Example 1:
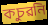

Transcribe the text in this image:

কচুৱনি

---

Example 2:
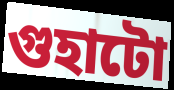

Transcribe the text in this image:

গুহাটো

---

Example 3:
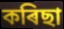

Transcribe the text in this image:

কৰিছা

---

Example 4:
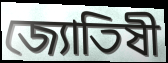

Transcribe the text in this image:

জ্যোতিষী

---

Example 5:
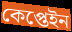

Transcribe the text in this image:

কেপ্তেইন